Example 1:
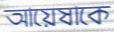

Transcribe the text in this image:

আয়েষাকে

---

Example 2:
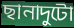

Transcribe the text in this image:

ছানাদুটো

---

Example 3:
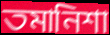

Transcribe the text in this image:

তমানিশা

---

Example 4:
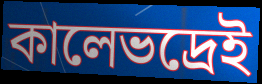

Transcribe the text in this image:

কালেভদ্রেই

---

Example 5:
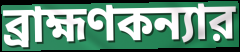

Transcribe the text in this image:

ব্রাহ্মণকন্যার